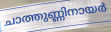
ചാത്തുണ്ണിനായർ